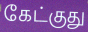
கேட்குது